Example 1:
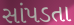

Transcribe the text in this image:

સાંપડતા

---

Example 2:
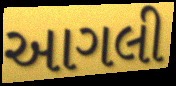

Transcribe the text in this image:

આગલી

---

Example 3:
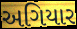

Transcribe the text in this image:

અગિયાર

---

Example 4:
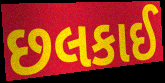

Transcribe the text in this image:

છલકાઈ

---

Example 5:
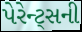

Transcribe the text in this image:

પેરેન્ટ્સની